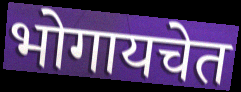
भोगायचेत